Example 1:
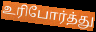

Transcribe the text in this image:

உரிபோர்த்து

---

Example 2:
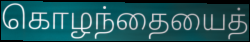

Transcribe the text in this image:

கொழந்தையைத்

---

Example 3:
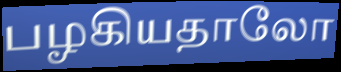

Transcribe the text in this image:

பழகியதாலோ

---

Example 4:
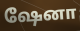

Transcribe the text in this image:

ஷேனா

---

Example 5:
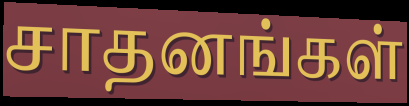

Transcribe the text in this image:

சாதனங்கள்